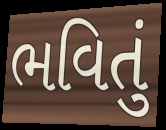
ભવિતું